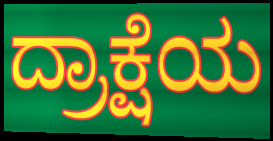
ದ್ರಾಕ್ಷೆಯ